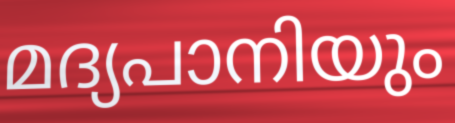
മദ്യപാനിയും